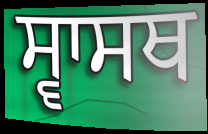
ਸ੍ਵਾਸਥ